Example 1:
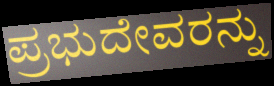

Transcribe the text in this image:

ಪ್ರಭುದೇವರನ್ನು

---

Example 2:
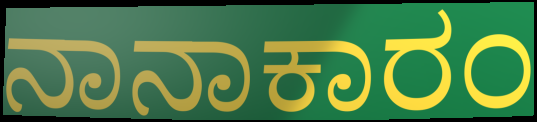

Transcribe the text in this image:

ನಾನಾಕಾರಂ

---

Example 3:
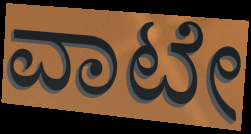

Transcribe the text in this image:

ವಾಟೇ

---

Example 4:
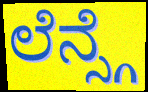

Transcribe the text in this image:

ಲೆನ್ಸ್ಗೆ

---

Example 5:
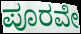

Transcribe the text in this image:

ಪೂರವೇ